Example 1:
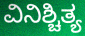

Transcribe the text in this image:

ವಿನಿಶ್ಚಿತ್ಯ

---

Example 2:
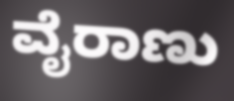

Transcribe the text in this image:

ವೈರಾಣು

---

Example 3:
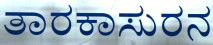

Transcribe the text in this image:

ತಾರಕಾಸುರನ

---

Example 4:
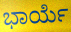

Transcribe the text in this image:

ಭಾರ್ಯೆ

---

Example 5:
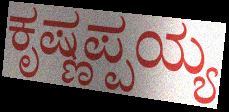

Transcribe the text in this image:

ಕೃಷ್ಣಪ್ಪಯ್ಯ